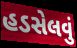
હડસેલવું